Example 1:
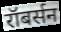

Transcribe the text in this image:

रॉबर्सन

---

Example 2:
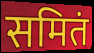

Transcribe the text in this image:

समितं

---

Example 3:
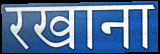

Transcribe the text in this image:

रखाना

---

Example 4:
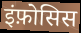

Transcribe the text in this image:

इंफ़ोसिस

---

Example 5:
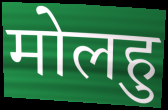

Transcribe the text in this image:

मोलहु